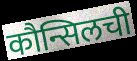
कौन्सिलची